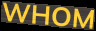
WHOM